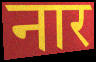
नार